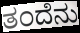
ತಂದೆನು